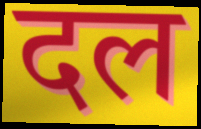
दल